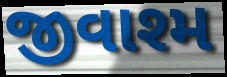
જીવાશ્મ